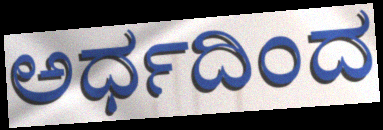
ಅರ್ಧದಿಂದ